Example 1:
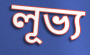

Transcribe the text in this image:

লূভ্য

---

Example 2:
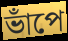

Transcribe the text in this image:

ভাঁপে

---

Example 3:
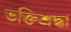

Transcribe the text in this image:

ভক্তিশ্রদ্ধা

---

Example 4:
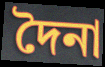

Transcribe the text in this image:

দৈনা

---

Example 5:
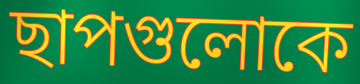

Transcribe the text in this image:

ছাপগুলোকে